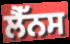
ਲੈੱਨਸ